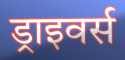
ड्राइवर्स